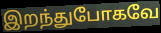
இறந்துபோகவே